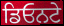
ਡਿਓਨਟੇ